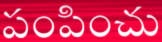
పంపించు